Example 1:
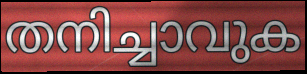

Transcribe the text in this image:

തനിച്ചാവുക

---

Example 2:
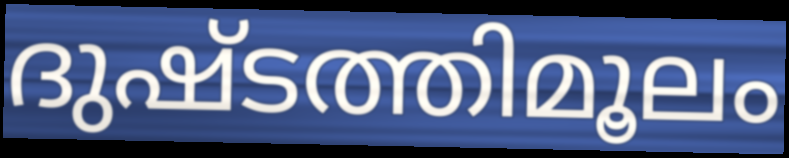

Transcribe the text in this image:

ദുഷ്ടത്തിമൂലം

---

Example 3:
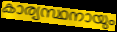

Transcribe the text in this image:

കാര്യസ്ഥനായും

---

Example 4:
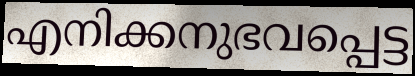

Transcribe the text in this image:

എനിക്കനുഭവപ്പെട്ട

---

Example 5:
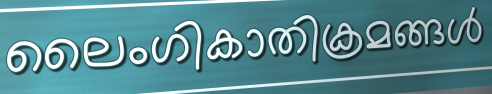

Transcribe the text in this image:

ലൈംഗികാതിക്രമങ്ങൾ